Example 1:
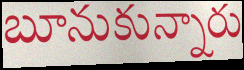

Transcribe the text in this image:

బూనుకున్నారు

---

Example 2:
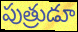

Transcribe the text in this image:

పుత్రుడూ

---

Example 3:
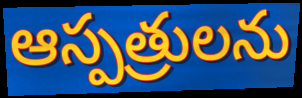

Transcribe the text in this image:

ఆస్పత్రులను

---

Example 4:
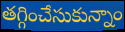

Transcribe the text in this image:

తగ్గించేసుకున్నాం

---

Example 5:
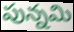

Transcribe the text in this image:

పున్నమి